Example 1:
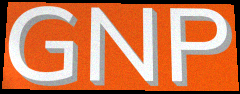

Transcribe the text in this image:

GNP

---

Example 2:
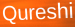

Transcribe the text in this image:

Qureshi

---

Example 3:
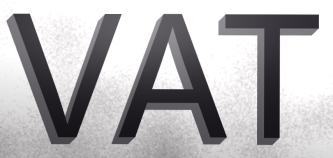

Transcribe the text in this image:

VAT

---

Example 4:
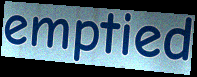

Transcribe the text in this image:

emptied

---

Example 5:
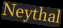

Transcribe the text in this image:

Neythal